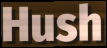
Hush